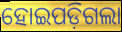
ହୋଇପଡ଼ିଗଲା